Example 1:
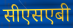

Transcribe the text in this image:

सीएसएबी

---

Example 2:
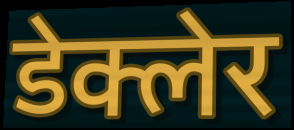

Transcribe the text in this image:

डेक्लेर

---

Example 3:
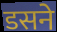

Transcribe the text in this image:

डसने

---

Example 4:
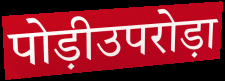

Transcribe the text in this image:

पोड़ीउपरोड़ा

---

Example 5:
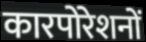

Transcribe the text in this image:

कारपोरेशनों